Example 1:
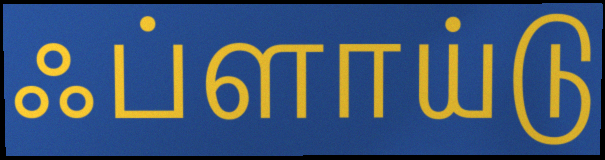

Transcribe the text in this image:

ஃப்ளாய்டு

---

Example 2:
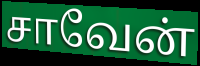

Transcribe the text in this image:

சாவேன்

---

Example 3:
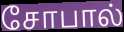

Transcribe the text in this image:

சோபால்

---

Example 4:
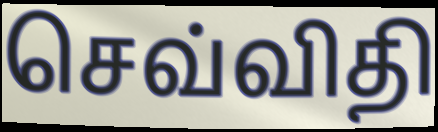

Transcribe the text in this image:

செவ்விதி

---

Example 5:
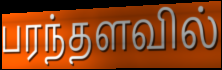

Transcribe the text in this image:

பரந்தளவில்